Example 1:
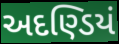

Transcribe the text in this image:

અદણ્ડિયં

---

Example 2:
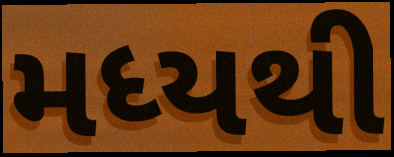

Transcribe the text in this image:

મધ્યથી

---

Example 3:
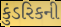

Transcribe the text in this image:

કુંડરિકની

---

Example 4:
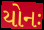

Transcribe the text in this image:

યોનઃ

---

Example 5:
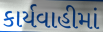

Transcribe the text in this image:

કાર્યવાહીમાં